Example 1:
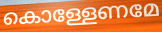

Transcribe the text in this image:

കൊള്ളേണമേ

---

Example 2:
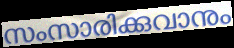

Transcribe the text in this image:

സംസാരിക്കുവാനും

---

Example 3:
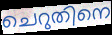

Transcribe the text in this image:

ചെറുതിനെ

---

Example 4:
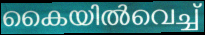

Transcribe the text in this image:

കൈയിൽവെച്ച്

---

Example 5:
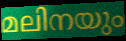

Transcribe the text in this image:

മലിനയും